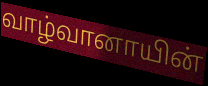
வாழ்வானாயின்